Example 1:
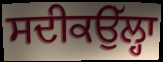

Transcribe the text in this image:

ਸਦੀਕਉੱਲ੍ਹਾ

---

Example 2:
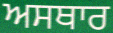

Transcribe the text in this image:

ਅਸਥਾਰ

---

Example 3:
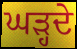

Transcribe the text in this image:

ਘੜ੍ਹਦੇ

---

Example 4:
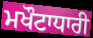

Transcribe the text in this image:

ਮਖੌਟਾਧਾਰੀ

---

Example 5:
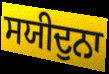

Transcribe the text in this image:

ਸਯੀਦੁਨਾ